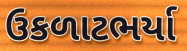
ઉકળાટભર્યા